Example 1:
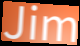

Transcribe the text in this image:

Jim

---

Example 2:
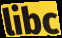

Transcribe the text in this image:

libc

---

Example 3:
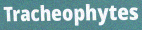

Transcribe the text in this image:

Tracheophytes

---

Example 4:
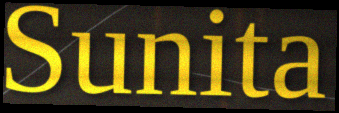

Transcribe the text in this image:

Sunita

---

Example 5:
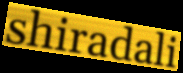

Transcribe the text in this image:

shiradali